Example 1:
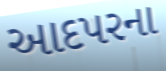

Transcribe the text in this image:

આદપરના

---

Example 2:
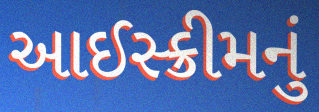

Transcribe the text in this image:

આઈસ્ક્રીમનું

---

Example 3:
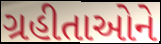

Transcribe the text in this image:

ગ્રહીતાઓને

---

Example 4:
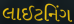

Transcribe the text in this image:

લાઈટનિંગ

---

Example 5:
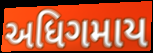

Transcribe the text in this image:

અધિગમાય